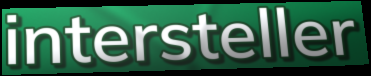
intersteller